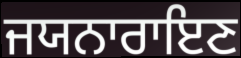
ਜਯਨਾਰਾਇਣ